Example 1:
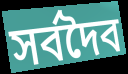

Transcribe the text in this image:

সর্বদৈব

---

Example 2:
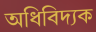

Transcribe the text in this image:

অধিবিদ্যক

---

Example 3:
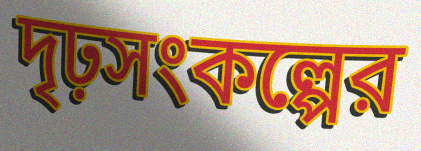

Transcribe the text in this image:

দৃঢ়সংকল্পের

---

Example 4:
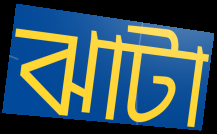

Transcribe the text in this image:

ঝাটা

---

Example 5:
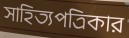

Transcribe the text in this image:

সাহিত্যপত্রিকার